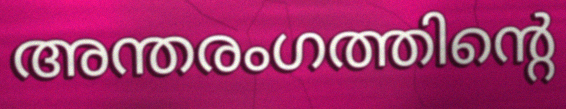
അന്തരംഗത്തിന്റെ